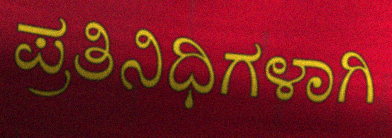
ಪ್ರತಿನಿಧಿಗಳಾಗಿ